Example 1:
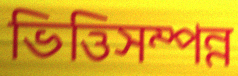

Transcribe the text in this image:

ভিত্তিসম্পন্ন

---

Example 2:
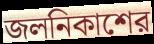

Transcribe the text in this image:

জলনিকাশের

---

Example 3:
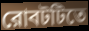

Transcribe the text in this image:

রোবটটিতে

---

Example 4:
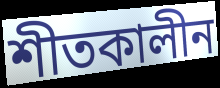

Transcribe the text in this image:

শীতকালীন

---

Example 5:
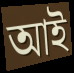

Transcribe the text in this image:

আই